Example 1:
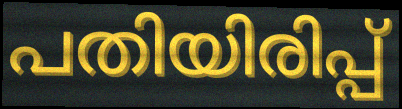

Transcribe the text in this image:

പതിയിരിപ്പ്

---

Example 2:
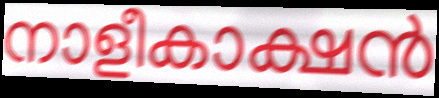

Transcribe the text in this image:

നാളീകാക്ഷൻ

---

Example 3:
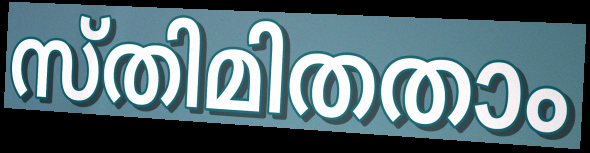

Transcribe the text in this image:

സ്തിമിതതാം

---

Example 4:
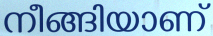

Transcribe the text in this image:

നീങ്ങിയാണ്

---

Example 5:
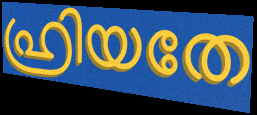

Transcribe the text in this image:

ഹ്രിയതേ